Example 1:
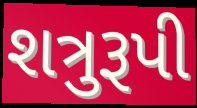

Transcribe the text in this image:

શત્રુરૂપી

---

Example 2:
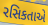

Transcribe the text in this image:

રસિકતાએ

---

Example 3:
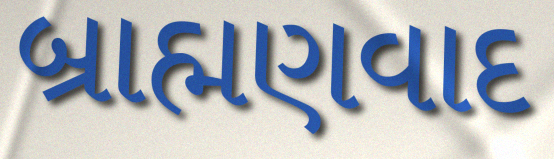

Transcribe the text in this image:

બ્રાહ્મણવાદ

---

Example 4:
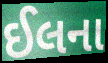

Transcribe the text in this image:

ઈલના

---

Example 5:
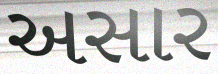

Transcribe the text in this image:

અસાર